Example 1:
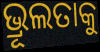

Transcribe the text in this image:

ଭ୍ରୂଲତାକୁ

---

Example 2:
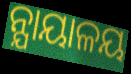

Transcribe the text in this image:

ନ୍ଯାୟାଳୟ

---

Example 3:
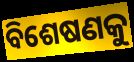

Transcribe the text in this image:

ବିଶେଷଣକୁ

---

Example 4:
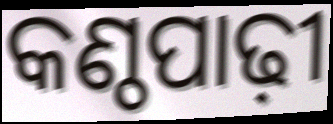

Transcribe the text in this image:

କଣ୍ଠପାଢ଼ୀ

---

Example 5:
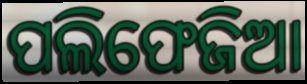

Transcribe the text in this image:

ପଲିଫେଜିଆ